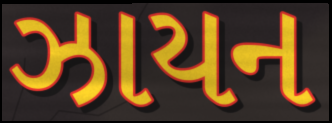
ઝાયન